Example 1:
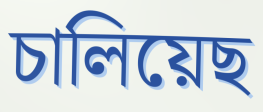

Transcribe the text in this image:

চালিয়েছ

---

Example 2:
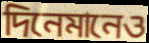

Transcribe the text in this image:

দিনেমানেও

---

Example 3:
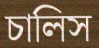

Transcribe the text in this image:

চালিস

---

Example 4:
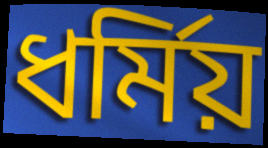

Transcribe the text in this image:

ধর্মিয়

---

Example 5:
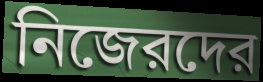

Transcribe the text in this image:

নিজেরদের